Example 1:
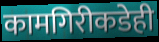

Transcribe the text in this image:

कामगिरीकडेही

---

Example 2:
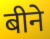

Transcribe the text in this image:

बीने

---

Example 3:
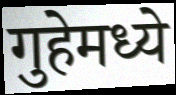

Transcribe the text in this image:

गुहेमध्ये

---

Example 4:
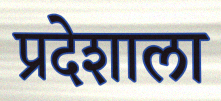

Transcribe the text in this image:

प्रदेशाला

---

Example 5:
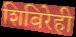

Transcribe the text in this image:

शिबिरेही